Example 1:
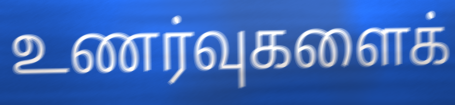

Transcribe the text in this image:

உணர்வுகளைக்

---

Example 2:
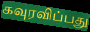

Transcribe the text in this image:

கவுரவிப்பது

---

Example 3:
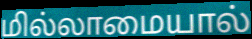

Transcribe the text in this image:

மில்லாமையால்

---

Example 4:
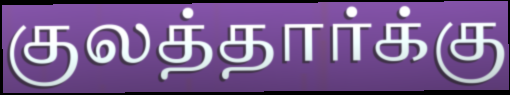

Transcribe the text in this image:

குலத்தார்க்கு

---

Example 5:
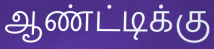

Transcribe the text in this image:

ஆண்ட்டிக்கு